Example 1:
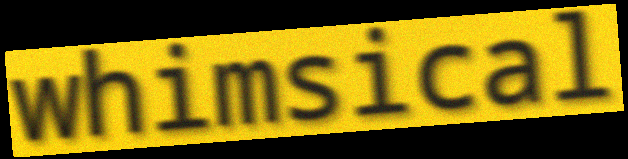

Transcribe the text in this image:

whimsical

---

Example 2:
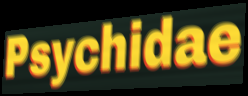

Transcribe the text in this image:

Psychidae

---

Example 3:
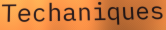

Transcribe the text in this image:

Techaniques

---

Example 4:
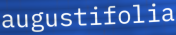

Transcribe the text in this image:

augustifolia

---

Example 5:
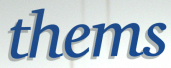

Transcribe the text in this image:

thems